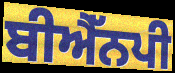
ਬੀਐੱਨਪੀ